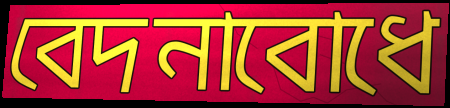
বেদনাবোধে